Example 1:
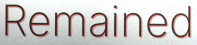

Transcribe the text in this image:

Remained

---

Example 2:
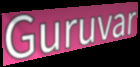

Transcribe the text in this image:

Guruvar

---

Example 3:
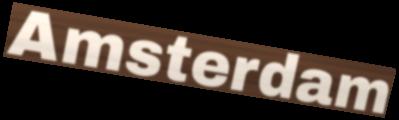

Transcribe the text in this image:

Amsterdam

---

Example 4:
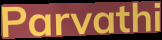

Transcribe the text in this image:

Parvathi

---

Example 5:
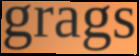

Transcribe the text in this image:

grags